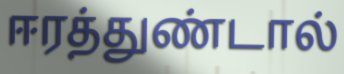
ஈரத்துண்டால்